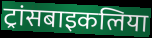
ट्रांसबाइकलिया